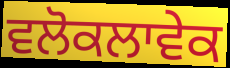
ਵਲੋਕਲਾਵੇਕ